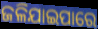
ଜଳିଯାଇପାରେ